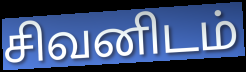
சிவனிடம்